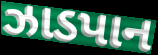
ઝાડપાન